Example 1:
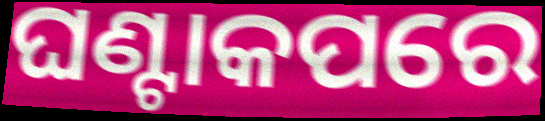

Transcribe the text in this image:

ଘଣ୍ଟାକପରେ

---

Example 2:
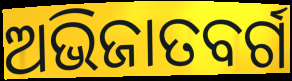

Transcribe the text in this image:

ଅଭିଜାତବର୍ଗ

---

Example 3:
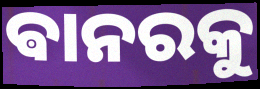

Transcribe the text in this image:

ଵାନରକୁ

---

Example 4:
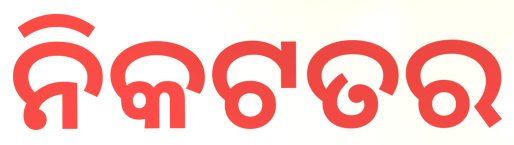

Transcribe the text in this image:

ନିକଟତର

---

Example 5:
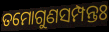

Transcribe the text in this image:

ତମୋଗୁଣସମ୍ପନ୍ତଃ